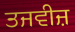
ਤਜਵੀਜ਼